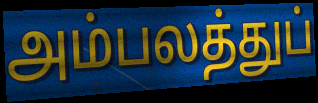
அம்பலத்துப்